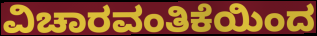
ವಿಚಾರವಂತಿಕೆಯಿಂದ